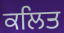
ਕਲਿਤ